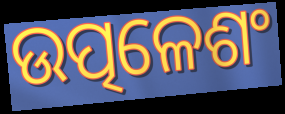
ଉତ୍ପଳେଶଂ